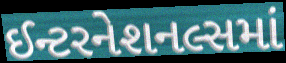
ઈન્ટરનેશનલ્સમાં